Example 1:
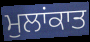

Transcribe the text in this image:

ਮੁਲਾਂਕਾਤ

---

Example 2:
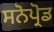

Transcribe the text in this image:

ਸਨੋਪ੍ਰੋਡ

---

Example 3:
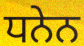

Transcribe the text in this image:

ਧਨੇਨ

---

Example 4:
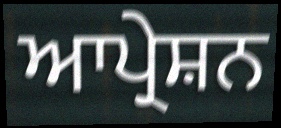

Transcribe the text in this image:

ਆਪ੍ਰੇਸ਼ਨ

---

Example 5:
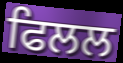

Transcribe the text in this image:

ਫਿਲਲ